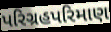
પરિગ્રહપરિમાણ